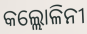
କଲ୍ଲୋଳିନୀ